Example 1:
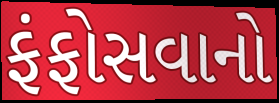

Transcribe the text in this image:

ફંફોસવાનો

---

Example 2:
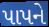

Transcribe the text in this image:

પાપને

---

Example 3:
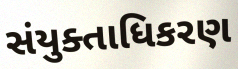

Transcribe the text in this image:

સંયુક્તાધિકરણ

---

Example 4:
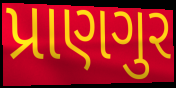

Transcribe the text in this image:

પ્રાણગુર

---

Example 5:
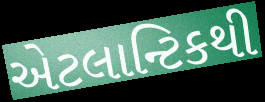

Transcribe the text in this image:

એટલાન્ટિકથી